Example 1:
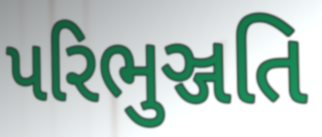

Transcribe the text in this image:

પરિભુઞ્જતિ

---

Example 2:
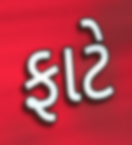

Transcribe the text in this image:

ફાટે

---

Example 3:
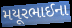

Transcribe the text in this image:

મયૂરભાઈના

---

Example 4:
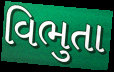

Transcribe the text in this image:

વિભુતા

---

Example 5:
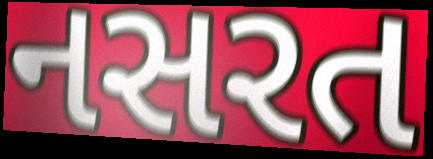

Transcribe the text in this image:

નસરત